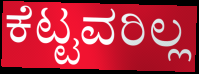
ಕೆಟ್ಟವರಿಲ್ಲ